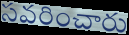
సవరించారు